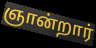
ஞான்றார்